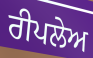
ਰੀਪਲੇਅ